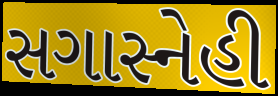
સગાસ્નેહી